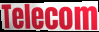
Telecom